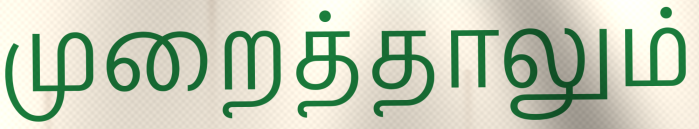
முறைத்தாலும்